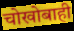
चोखोबाही